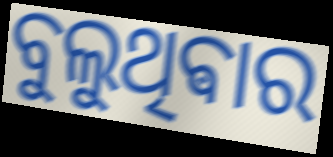
ବୁଲୁଥିଵାର